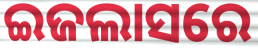
ଇଜଲାସରେ